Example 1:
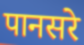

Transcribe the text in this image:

पानसरे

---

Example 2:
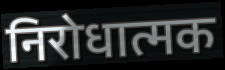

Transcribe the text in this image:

निरोधात्मक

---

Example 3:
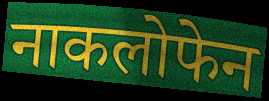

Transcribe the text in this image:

नाकलोफेन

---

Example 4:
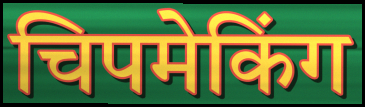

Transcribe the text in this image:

चिपमेकिंग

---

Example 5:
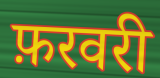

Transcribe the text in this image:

फ़रवरी